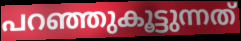
പറഞ്ഞുകൂട്ടുന്നത്